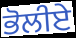
ਭੋਲੀਏ